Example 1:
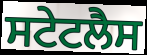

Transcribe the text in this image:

ਸਟੇਟਲੈਸ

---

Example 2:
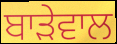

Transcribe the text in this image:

ਬਾੜੇਵਾਲ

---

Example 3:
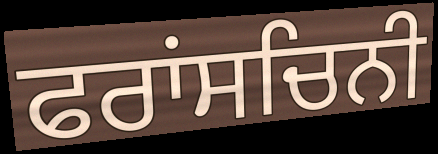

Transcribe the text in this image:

ਫਰਾਂਸਚਿਨੀ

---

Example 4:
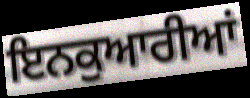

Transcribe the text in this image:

ਇਨਕੁਆਰੀਆਂ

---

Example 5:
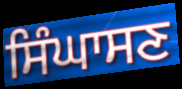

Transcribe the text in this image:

ਸਿੰਘਾਸਣ